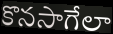
కొనసాగేలా